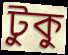
টুকু